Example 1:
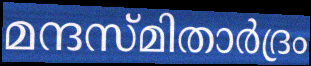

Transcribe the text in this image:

മന്ദസ്മിതാർദ്രം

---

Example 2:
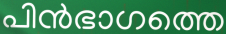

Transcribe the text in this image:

പിൻഭാഗത്തെ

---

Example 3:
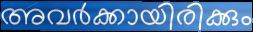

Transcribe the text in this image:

അവർക്കായിരിക്കും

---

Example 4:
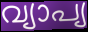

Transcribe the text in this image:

വ്യാപ്യ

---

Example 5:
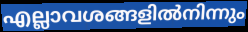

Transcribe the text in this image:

എല്ലാവശങ്ങളിൽനിന്നും